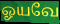
ஓயவே